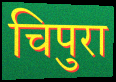
चिपुरा